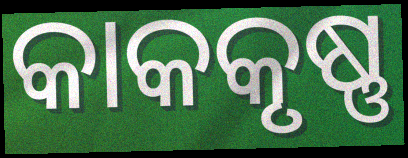
କାକକୃଷ୍ଣ